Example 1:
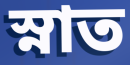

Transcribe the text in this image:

স্নাত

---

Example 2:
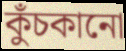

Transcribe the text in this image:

কুঁচকানো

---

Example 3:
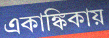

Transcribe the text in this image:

একাঙ্কিকায়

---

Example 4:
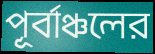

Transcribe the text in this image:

পূর্বাঞ্চলের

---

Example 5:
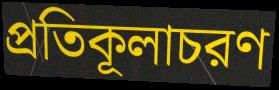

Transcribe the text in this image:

প্রতিকূলাচরণ